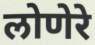
लोणेरे